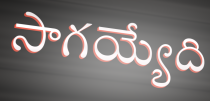
సాగయ్యేది